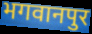
भगवानपुर